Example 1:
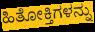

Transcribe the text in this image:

ಹಿತೋಕ್ತಿಗಳನ್ನು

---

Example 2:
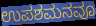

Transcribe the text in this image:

ಉಪಶಮನವೂ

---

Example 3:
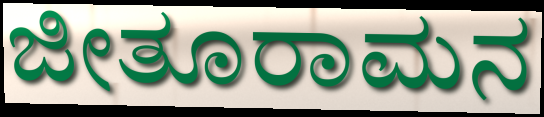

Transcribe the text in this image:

ಜೀತೂರಾಮನ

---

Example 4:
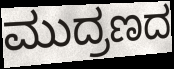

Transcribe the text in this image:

ಮುದ್ರಣದ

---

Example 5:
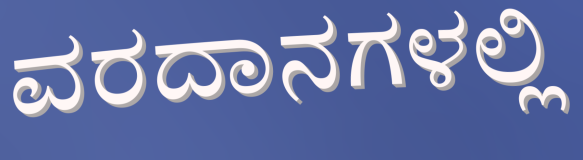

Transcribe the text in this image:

ವರದಾನಗಳಲ್ಲಿ